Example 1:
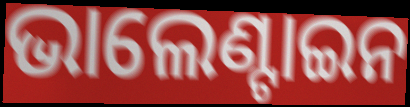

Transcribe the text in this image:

ଭାଲେଣ୍ଟାଇନ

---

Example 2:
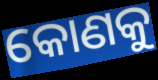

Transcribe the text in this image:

କୋଣକୁ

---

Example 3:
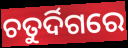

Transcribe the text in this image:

ଚତୁର୍ଦିଗରେ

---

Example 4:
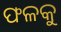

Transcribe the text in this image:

ଫଳକୁ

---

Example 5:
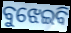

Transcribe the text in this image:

ବୁଝେଇବି